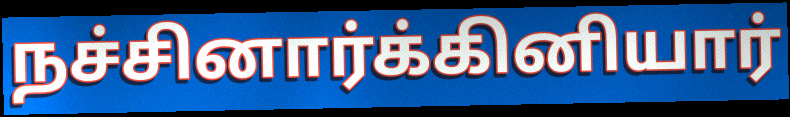
நச்சினார்க்கினியார்